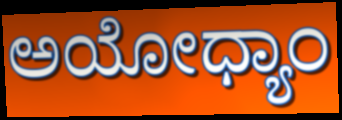
ಅಯೋಧ್ಯಾಂ